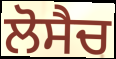
ਲੋਸੈਚ